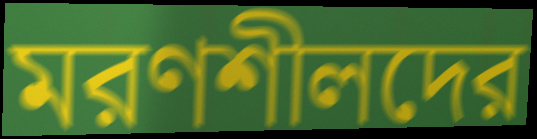
মরণশীলদের